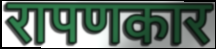
रापणकार